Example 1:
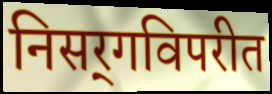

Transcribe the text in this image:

निसर्गविपरीत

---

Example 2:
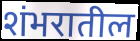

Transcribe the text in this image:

शंभरातील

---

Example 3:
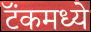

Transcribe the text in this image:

टॅंकमध्ये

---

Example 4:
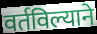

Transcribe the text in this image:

वर्तविल्याने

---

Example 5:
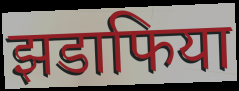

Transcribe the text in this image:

झडाफिया